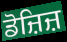
ਡੋਜ਼ਿਜ਼